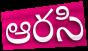
ఆరసి